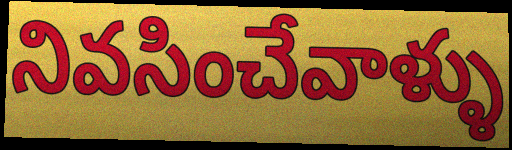
నివసించేవాళ్ళు